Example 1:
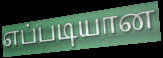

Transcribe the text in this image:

எப்படியான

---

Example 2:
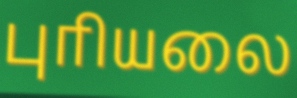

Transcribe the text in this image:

புரியலை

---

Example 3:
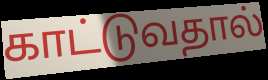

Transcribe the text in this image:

காட்டுவதால்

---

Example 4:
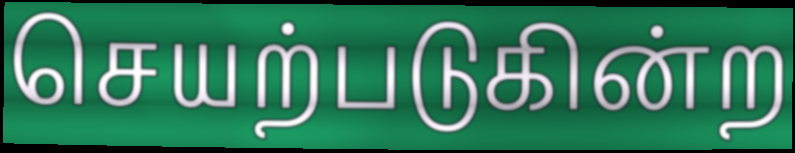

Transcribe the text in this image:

செயற்படுகின்ற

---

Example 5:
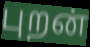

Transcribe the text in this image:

புறன்